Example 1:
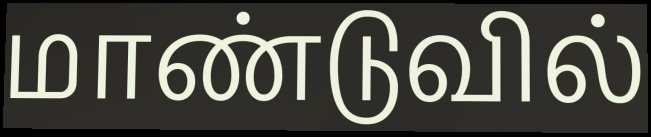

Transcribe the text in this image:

மாண்டுவில்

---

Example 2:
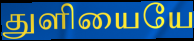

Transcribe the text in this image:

துளியையே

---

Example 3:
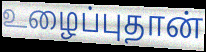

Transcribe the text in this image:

உழைப்புதான்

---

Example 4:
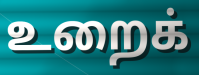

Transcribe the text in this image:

உறைக்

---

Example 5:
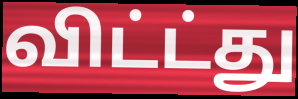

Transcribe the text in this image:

விட்ட்து